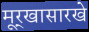
मूर्खासारखे